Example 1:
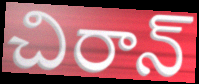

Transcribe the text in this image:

చిరాన్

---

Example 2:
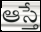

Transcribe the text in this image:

ఆస్తే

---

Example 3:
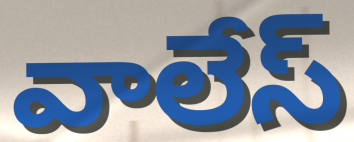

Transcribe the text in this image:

వాలేస్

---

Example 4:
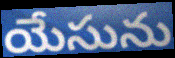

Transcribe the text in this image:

యేసును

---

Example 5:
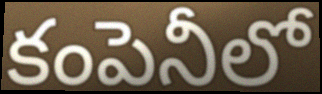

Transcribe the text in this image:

కంపెనీలో